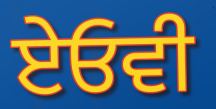
ਏਓਵੀ